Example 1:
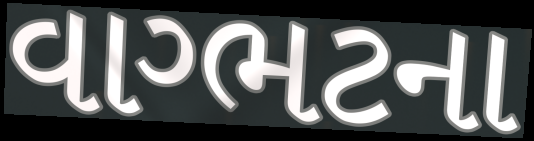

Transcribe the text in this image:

વાગ્ભટના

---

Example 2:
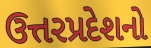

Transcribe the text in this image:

ઉત્તરપ્રદેશનો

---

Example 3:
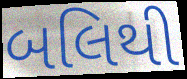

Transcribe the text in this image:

બલિથી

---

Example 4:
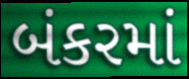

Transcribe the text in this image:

બંકરમાં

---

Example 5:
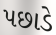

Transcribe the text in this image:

પછાડે